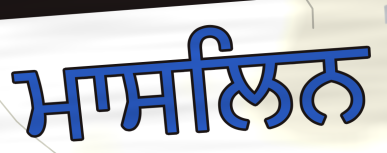
ਮਾਸਲਿਨ